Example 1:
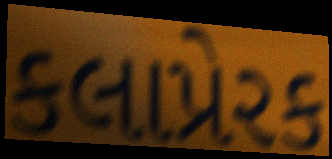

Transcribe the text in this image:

કલાપ્રેરક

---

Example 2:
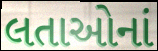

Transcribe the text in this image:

લતાઓનાં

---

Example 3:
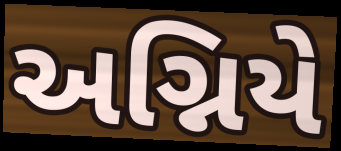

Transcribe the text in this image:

અગ્નિયે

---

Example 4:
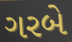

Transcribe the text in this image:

ગરબે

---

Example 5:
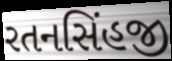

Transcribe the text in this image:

રતનસિંહજી